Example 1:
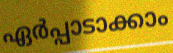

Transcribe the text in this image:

ഏർപ്പാടാക്കാം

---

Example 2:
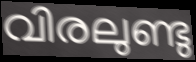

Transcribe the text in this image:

വിരലുണ്ടു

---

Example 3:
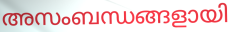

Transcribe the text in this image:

അസംബന്ധങ്ങളായി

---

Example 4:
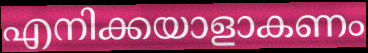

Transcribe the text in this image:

എനിക്കയാളാകണം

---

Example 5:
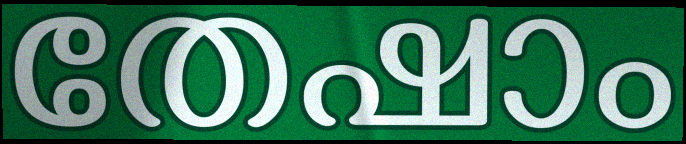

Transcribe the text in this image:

തേഷാം